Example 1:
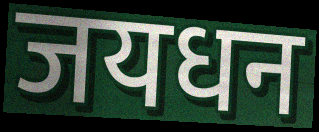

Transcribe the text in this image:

जयधन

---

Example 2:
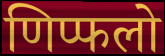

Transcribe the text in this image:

णिप्फलो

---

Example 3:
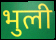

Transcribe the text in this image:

भुली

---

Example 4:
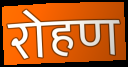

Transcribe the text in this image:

रोहण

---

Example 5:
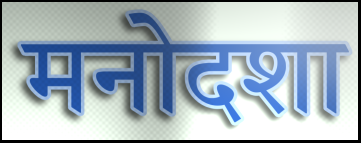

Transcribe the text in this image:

मनोदशा